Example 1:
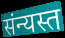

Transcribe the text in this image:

संन्यस्त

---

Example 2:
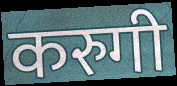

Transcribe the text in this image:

करुगी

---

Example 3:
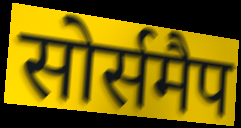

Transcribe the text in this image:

सोर्समैप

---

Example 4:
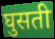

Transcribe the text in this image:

घुसती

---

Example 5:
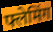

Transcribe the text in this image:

फ्लेमिंग